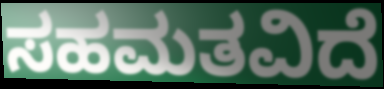
ಸಹಮತವಿದೆ